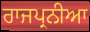
ਰਾਜਪ੍ਰਨੀਆ